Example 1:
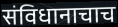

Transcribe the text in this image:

संविधानाचाच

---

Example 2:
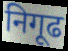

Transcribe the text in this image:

निगूढ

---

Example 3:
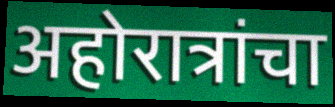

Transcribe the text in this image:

अहोरात्रांचा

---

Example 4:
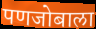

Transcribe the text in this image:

पणजोबाला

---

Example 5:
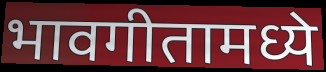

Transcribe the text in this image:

भावगीतामध्ये